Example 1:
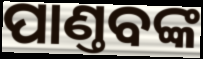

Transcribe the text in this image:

ପାଣ୍ତବଙ୍କ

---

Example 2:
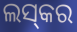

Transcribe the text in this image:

ଲସ୍‌କର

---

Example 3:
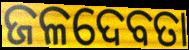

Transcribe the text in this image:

ଜଳଦେବତା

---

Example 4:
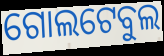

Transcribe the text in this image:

ଗୋଲଟେବୁଲ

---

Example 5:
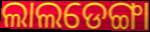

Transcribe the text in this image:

ଲାଲଡେଙ୍ଗା